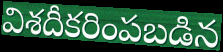
విశదీకరింపబడిన